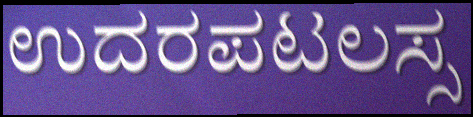
ಉದರಪಟಲಸ್ಸ